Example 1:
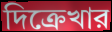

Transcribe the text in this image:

দিক্রেখার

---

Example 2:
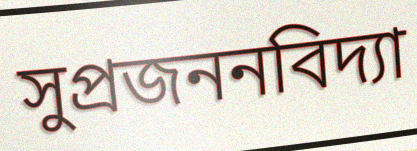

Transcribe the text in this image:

সুপ্রজননবিদ্যা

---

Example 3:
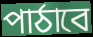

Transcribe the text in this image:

পাঠাবে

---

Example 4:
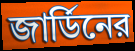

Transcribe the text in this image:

জার্ডিনের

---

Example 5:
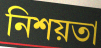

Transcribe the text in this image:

নিশয়তা